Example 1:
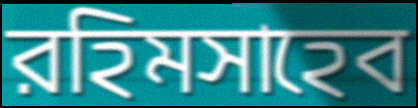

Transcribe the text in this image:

রহিমসাহেব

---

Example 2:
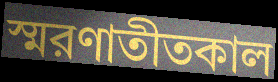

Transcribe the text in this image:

স্মরণাতীতকাল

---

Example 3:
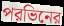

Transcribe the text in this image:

পরভিনের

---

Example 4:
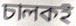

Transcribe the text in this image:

চালকই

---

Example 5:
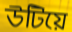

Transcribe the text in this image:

উটিয়ে